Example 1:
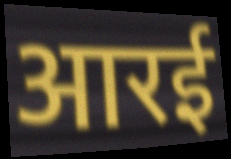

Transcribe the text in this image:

आरई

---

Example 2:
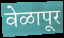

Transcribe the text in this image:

वेळापूर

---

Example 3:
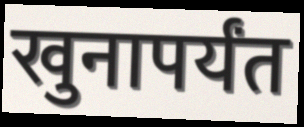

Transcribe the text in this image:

खुनापर्यंत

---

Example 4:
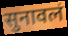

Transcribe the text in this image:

सुनावलं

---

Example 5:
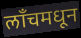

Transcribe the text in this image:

लॉंचमधून